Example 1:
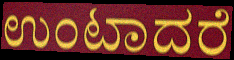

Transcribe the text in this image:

ಉಂಟಾದರೆ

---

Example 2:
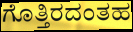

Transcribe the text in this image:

ಗೊತ್ತಿರದಂತಹ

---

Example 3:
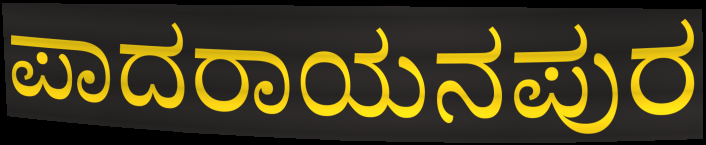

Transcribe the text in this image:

ಪಾದರಾಯನಪುರ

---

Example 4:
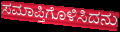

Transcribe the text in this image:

ಸಮಾಪ್ತಿಗೊಳಿಸಿದನು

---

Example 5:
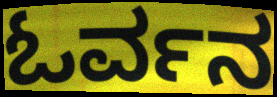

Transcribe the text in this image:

ಓರ್ವನ